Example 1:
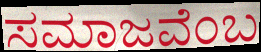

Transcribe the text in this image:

ಸಮಾಜವೆಂಬ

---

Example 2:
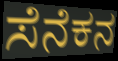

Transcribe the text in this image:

ಸೆನೆಕನ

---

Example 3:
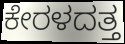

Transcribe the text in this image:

ಕೇರಳದತ್ತ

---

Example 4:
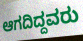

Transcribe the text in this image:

ಆಗದಿದ್ದವರು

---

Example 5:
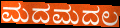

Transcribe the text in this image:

ಮದಮದಲ